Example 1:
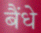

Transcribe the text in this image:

बैंधे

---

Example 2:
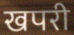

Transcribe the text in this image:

खपरी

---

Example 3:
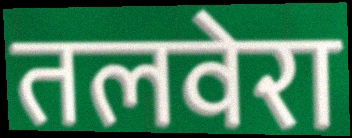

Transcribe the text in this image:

तलवेरा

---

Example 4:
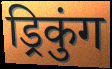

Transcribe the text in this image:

ड्रिकुंग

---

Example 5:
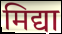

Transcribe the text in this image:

मिद्या